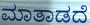
ಮಾತಾಡದೆ